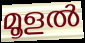
മൂളൽ